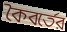
কৈবর্তের